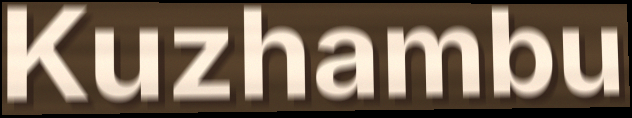
Kuzhambu